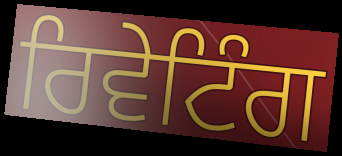
ਰਿਵੇਟਿੰਗ